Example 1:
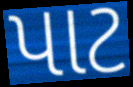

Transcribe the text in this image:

પાટ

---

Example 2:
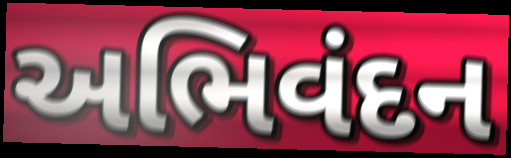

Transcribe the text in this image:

અભિવંદન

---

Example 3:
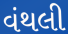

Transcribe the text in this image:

વંથલી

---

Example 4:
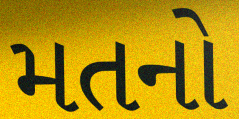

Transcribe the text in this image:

મતનો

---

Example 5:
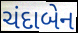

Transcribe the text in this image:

ચંદાબેન